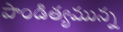
పాండిత్యమున్న